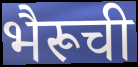
भैरूची